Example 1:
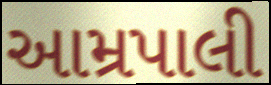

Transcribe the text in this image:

આમ્રપાલી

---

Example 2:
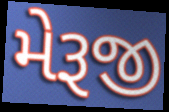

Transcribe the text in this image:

મેરૂજી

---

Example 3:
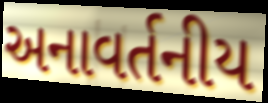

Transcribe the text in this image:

અનાવર્તનીય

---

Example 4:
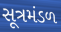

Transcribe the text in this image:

સૂત્રમંડળ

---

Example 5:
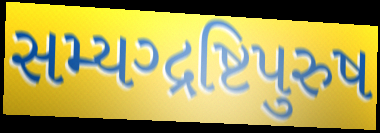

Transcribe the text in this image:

સમ્યગ્દ્રષ્ટિપુરુષ